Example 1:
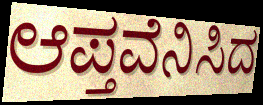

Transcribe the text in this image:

ಆಪ್ತವೆನಿಸಿದ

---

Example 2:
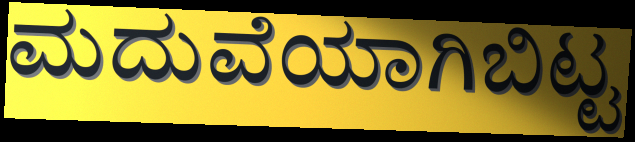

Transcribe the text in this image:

ಮದುವೆಯಾಗಿಬಿಟ್ಟ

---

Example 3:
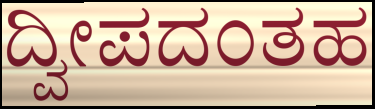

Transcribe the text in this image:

ದ್ವೀಪದಂತಹ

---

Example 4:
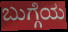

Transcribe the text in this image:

ಬುಗ್ಗೆಯ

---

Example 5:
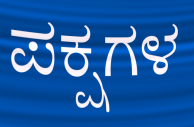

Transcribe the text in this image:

ಪಕ್ಷಗಳ